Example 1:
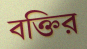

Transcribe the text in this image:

বক্তির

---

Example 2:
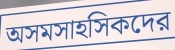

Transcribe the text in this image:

অসমসাহসিকদের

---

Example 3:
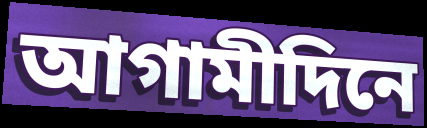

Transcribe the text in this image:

আগামীদিনে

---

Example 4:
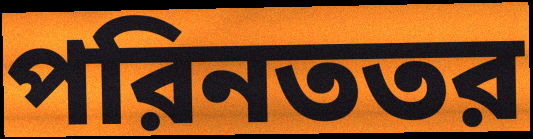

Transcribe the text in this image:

পরিনততর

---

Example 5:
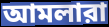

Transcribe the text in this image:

আমলারা